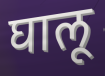
घालू